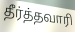
தீர்த்தவாரி